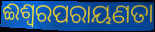
ଈଶ୍ୱରପରାୟଣତା